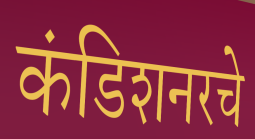
कंडिशनरचे